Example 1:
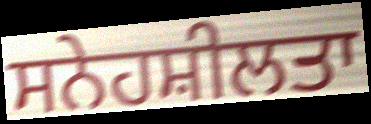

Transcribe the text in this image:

ਸਨੇਹਸ਼ੀਲਤਾ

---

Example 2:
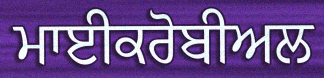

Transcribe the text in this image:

ਮਾਈਕਰੋਬੀਅਲ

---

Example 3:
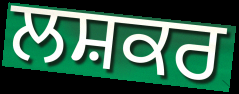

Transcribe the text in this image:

ਲਸ਼ਕਰ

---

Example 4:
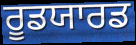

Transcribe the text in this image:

ਰੂਡਯਾਰਡ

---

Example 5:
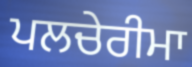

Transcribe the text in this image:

ਪਲਚੇਰੀਮਾ